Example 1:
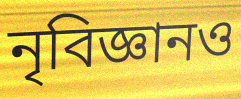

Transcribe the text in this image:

নৃবিজ্ঞানও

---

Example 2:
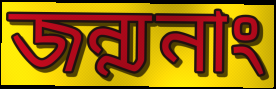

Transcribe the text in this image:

জন্মনাং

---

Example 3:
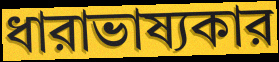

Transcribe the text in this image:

ধারাভাষ্যকার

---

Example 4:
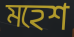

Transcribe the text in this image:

মহেশ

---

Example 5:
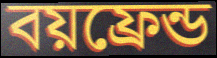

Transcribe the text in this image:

বয়ফ্রেন্ড